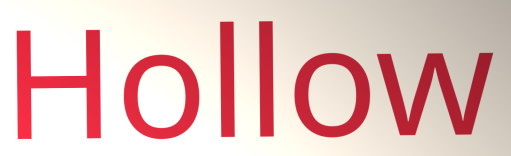
Hollow